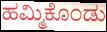
ಹಮ್ಮಿಕೊಂಡು